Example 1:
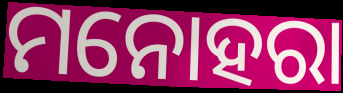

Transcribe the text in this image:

ମନୋହରା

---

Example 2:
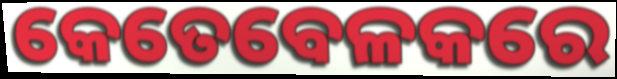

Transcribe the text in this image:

କେତେବେଳକରେ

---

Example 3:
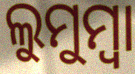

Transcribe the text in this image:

ଲୁମୁମ୍ବା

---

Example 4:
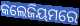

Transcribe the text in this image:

କଲେଜିୟମରେ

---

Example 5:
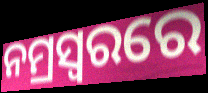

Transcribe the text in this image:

ନମ୍ରସ୍ୱରରେ